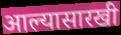
आल्यासारखी